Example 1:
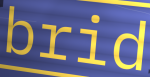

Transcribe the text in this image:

brid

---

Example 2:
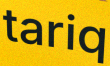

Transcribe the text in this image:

tariq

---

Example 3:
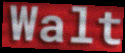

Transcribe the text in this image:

Walt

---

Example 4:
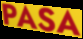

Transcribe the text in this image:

PASA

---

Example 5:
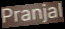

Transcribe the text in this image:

Pranjal